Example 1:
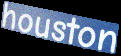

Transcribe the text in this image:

houston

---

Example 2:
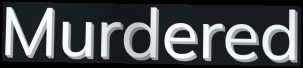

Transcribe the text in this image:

Murdered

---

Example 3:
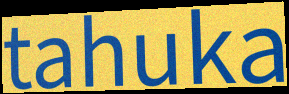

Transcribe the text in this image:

tahuka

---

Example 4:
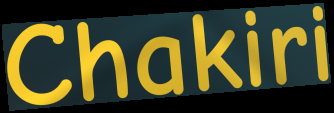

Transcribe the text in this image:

Chakiri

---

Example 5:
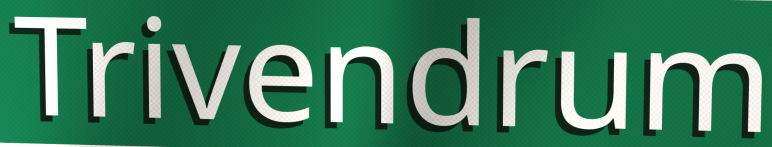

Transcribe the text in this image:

Trivendrum